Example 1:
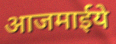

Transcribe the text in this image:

आजमाईये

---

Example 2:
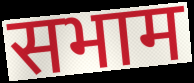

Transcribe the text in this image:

सभाम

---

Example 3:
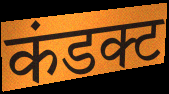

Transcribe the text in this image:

कंडक्‍ट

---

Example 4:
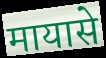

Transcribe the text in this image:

मायासे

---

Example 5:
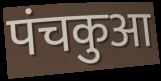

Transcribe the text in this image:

पंचकुआ